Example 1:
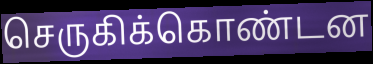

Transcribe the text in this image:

செருகிக்கொண்டன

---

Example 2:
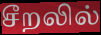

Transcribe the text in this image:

சீறலில்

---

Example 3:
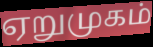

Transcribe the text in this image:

ஏறுமுகம்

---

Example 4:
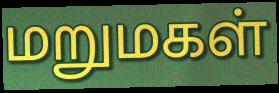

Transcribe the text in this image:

மறுமகள்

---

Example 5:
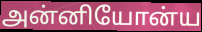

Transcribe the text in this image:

அன்னியோன்ய